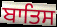
ਬਾਤਿਸ